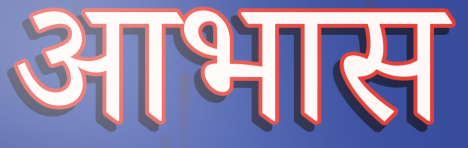
आभास